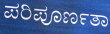
ಪರಿಪೂರ್ಣತಾ